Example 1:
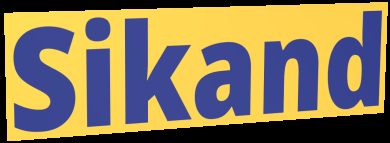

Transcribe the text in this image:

Sikand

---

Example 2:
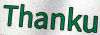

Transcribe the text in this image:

Thanku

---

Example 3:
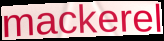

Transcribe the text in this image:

mackerel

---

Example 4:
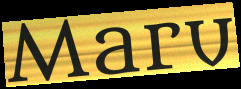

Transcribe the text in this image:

Maru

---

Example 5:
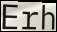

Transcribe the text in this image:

Erh